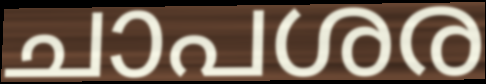
ചാപശര